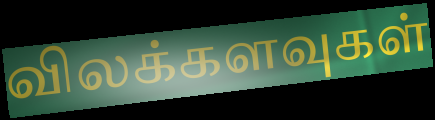
விலக்களவுகள்